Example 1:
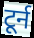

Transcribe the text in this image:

टूर्न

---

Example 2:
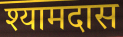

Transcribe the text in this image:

श्यामदास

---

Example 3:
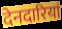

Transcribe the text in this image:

देनदारियां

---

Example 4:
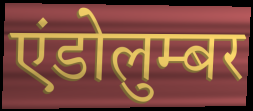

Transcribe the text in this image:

एंडोलुम्बर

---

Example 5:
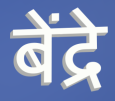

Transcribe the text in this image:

बेंद्रे